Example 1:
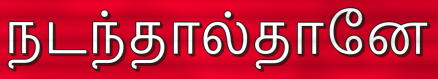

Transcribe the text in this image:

நடந்தால்தானே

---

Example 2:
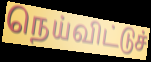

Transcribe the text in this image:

நெய்விட்டுச்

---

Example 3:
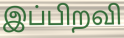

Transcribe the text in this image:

இப்பிறவி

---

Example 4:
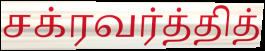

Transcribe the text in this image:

சக்ரவர்த்தித்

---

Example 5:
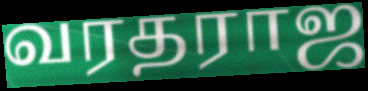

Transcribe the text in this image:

வரதராஜ